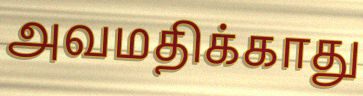
அவமதிக்காது